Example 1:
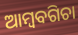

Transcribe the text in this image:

ଆମ୍ବବଗିଚା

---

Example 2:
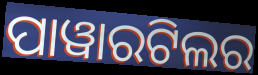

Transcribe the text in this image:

ପାୱାରଟିଲର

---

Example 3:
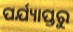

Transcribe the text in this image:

ପର୍ଯ୍ୟାପ୍ତରୁ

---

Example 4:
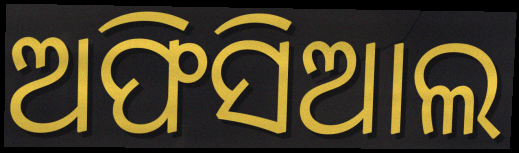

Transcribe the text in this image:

ଅଫିସିଆଲ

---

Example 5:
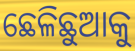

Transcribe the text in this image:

ଛେଳିଛୁଆକୁ